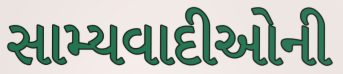
સામ્યવાદીઓની